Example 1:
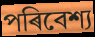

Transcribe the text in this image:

পৰিবেশ্য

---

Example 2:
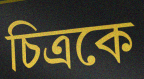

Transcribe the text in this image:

চিত্ৰকে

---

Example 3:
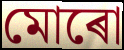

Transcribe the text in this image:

মোৰো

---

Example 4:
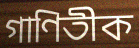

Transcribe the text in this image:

গাণিতীক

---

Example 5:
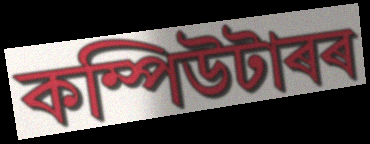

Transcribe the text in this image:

কম্পিউটাৰৰ